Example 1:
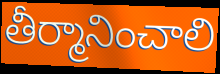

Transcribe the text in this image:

తీర్మానించాలి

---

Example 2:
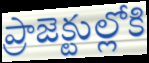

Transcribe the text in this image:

ప్రాజెక్టుల్లోకి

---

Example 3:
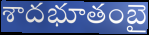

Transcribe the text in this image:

శాదభూతంబై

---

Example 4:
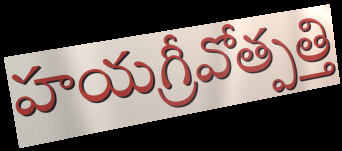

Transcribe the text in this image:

హయగ్రీవోత్పత్తి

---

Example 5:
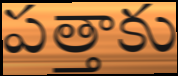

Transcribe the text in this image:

పత్తాకు